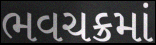
ભવચક્રમાં